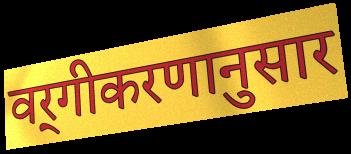
वर्गीकरणानुसार